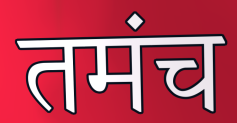
तमंच